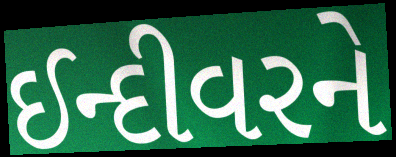
ઈન્દીવરને